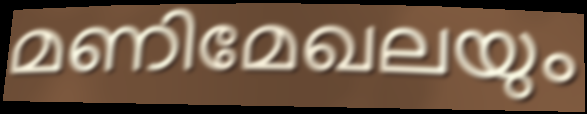
മണിമേഖലയും